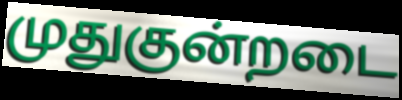
முதுகுன்றடை